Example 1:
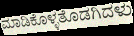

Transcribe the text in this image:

ಮಾಡಿಕೊಳ್ಳತೊಡಗಿದಳು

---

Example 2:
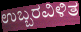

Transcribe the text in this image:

ಉಬ್ಬರವಿಳಿತ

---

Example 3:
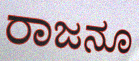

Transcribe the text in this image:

ರಾಜನೂ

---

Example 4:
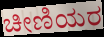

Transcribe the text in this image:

ಚೀಣಿಯರ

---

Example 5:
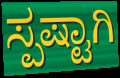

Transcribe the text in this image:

ಸ್ಪಷ್ಟಾಗಿ